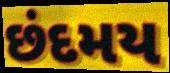
છંદમય